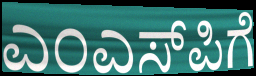
ಎಂಎಸ್‌ಪಿಗೆ